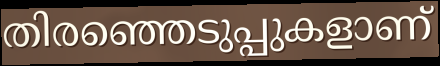
തിരഞ്ഞെടുപ്പുകളാണ്